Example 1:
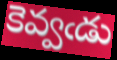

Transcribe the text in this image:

కెవ్వఁడు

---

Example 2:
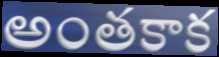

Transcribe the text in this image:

అంతకాక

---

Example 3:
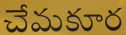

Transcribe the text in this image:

చేమకూర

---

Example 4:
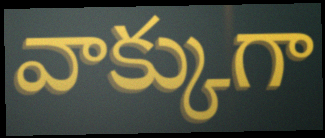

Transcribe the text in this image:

వాక్కుగా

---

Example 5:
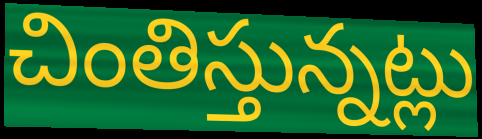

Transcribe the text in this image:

చింతిస్తున్నట్లు